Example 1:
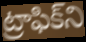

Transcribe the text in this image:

ట్రాఫిక్‌ని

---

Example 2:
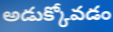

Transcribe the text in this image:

అడుక్కోవడం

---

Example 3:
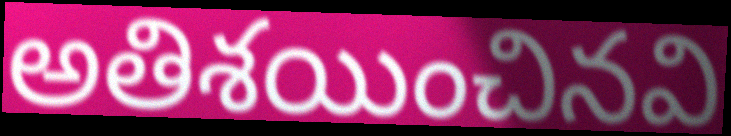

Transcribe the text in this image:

అతిశయించినవి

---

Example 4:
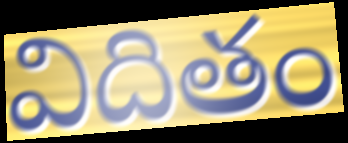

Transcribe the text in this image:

విదితం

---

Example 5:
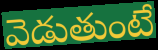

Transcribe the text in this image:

వెడుతుంటే